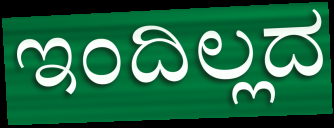
ಇಂದಿಲ್ಲದ